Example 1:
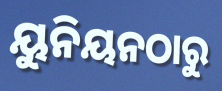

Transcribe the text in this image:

ୟୁନିୟନଠାରୁ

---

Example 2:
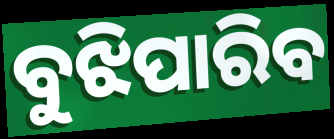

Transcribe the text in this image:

ବୁଝିପାରିବ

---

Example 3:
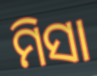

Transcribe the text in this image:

ମିସା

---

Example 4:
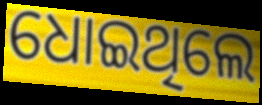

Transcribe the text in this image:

ଧୋଇଥିଲେ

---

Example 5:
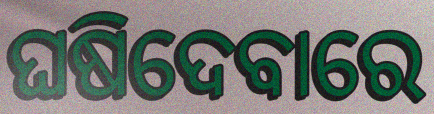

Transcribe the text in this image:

ଘଷିଦେବାରେ